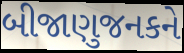
બીજાણુજનકને